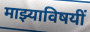
माझ्याविषयीं